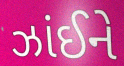
ઝાંઈને